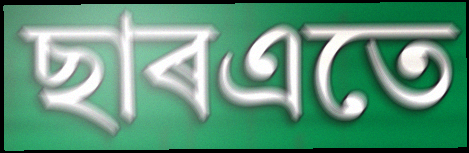
ছাৰএতে